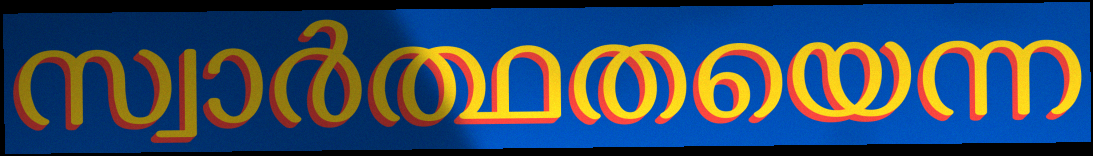
സ്വാർത്ഥതയെന്ന